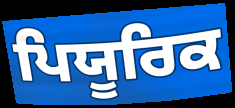
ਪਿਯੂਰਿਕ